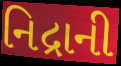
નિદ્રાની